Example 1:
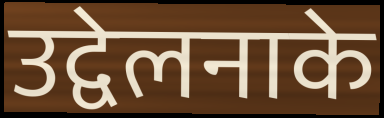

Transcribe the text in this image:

उद्वेलनाके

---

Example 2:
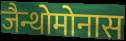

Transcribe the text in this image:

जैन्थोमोनास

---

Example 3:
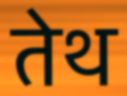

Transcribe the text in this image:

तेथ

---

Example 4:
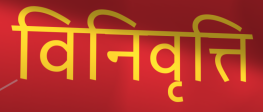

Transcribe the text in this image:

विनिवृत्ति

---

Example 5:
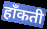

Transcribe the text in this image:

हाँकती